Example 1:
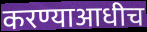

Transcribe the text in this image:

करण्याआधीच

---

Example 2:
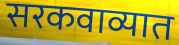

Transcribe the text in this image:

सरकवाव्यात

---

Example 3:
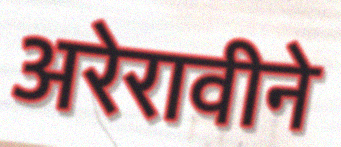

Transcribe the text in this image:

अरेरावीने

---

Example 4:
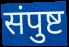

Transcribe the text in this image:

संपुष्ट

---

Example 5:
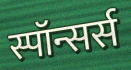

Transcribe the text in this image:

स्पॉन्सर्स